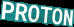
PROTON